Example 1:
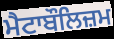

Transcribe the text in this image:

ਮੈਟਾਬੌਲਿਜ਼ਮ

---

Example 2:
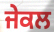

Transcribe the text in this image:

ਜੇਕਲ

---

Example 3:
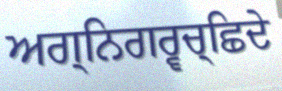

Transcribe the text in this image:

ਅਗ੍ਨਿਗਰ੍ਵਚ੍ਛਿਦੇ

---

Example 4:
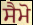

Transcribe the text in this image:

ਸੈਮੋ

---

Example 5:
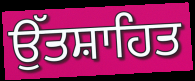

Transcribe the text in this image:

ਉੱਤਸ਼ਾਹਿਤ